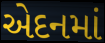
એદનમાં